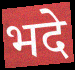
भदे